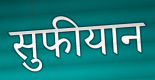
सुफीयान